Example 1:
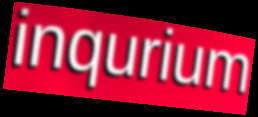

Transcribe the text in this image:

inqurium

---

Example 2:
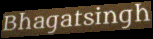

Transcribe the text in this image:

Bhagatsingh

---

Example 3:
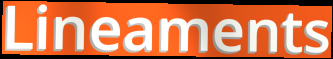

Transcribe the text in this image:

Lineaments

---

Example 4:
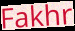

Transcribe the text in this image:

Fakhr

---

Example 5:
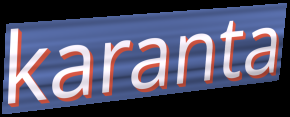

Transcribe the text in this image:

karanta